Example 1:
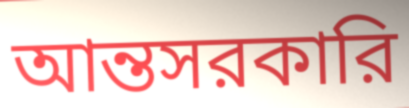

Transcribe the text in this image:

আন্তসরকারি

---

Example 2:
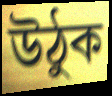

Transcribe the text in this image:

উঠুক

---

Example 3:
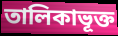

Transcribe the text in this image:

তালিকাভূক্ত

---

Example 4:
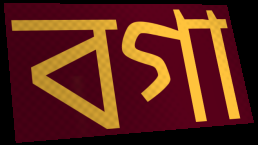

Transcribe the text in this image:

বগা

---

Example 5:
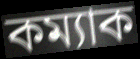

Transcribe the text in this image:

কম্যাক